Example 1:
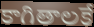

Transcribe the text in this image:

కాగితాలకే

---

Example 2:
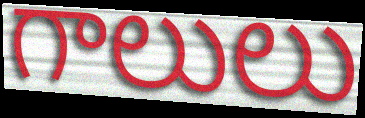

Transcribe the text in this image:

గాలులు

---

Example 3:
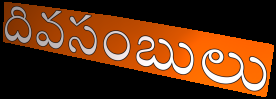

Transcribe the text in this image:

దివసంబులు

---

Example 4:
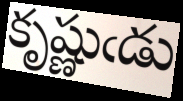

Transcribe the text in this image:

కృష్ణుఁడు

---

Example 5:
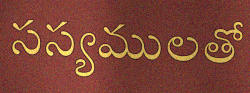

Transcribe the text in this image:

సస్యములతో